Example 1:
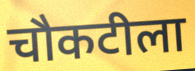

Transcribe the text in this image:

चौकटीला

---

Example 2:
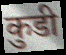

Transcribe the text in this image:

कुडी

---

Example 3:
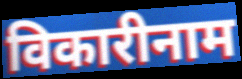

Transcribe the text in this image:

विकारीनाम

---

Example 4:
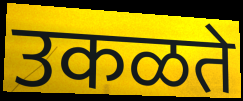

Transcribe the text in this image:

उकळते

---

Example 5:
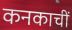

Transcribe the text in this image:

कनकाचीं